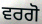
ਵਰਗੋ